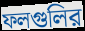
ফলগুলির